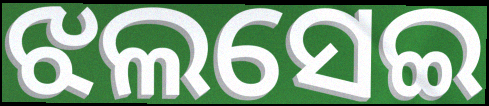
ଝଲସେଇ